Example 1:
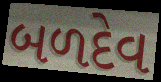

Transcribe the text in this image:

બળદેવ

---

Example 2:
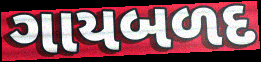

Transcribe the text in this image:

ગાયબળદ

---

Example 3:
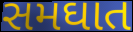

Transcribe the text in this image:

સમઘાત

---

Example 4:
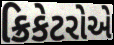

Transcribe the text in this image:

ક્રિકેટરોએ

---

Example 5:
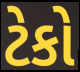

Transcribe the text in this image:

ટેકો